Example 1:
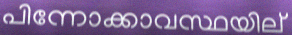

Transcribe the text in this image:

പിന്നോക്കാവസ്ഥയില്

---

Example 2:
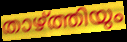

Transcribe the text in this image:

താഴ്ത്തിയും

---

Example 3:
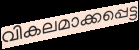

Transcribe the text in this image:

വികലമാക്കപ്പെട്ട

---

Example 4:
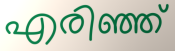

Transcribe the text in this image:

എരിഞ്ഞ്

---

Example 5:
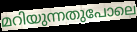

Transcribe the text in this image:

മറിയുന്നതുപോലെ